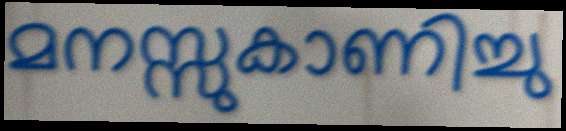
മനസ്സുകാണിച്ചു